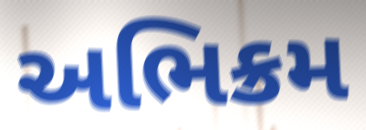
અભિક્રમ